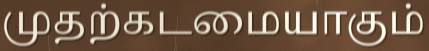
முதற்கடமையாகும்